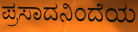
ಪ್ರಸಾದನಿಂದೆಯ